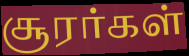
சூரர்கள்